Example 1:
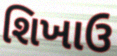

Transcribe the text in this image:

શિખાઉ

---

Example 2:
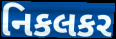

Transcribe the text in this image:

નિકલકર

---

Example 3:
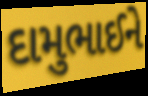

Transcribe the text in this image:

દામુભાઈને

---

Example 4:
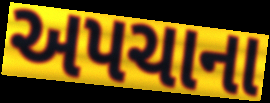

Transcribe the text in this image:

અપચાના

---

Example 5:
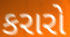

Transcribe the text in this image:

કરારો